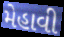
મેહાવી